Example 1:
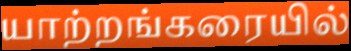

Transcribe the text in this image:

யாற்றங்கரையில்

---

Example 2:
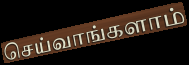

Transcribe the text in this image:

செய்வாங்களாம்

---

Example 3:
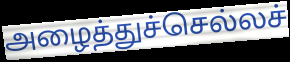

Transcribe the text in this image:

அழைத்துச்செல்லச்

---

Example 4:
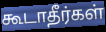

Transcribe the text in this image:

கூடாதீர்கள்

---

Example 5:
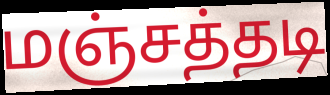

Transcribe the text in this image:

மஞ்சத்தடி